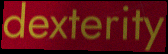
dexterity